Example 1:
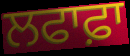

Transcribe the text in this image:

ਲਫਾਫ਼ਾ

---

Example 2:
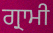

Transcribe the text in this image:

ਗ੍ਰਾਮੀ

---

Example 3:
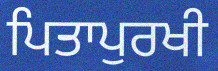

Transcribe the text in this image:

ਪਿਤਾਪੁਰਖੀ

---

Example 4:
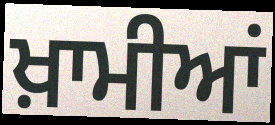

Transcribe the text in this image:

ਖ਼ਾਮੀਆਂ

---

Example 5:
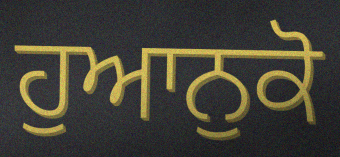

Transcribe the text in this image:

ਹੁਆਨੁਕੋ